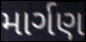
માર્ગણ